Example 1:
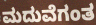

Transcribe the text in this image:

ಮದುವೆಗಂತ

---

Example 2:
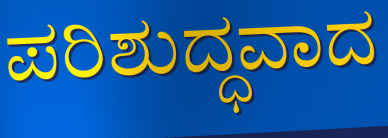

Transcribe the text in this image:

ಪರಿಶುದ್ಧವಾದ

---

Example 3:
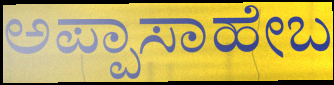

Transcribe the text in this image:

ಅಪ್ಪಾಸಾಹೇಬ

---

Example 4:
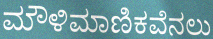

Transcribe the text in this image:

ಮೌಳಿಮಾಣಿಕವೆನಲು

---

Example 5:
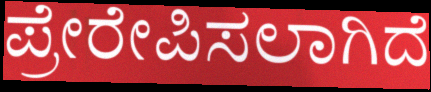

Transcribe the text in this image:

ಪ್ರೇರೇಪಿಸಲಾಗಿದೆ